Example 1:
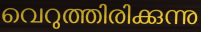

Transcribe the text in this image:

വെറുത്തിരിക്കുന്നു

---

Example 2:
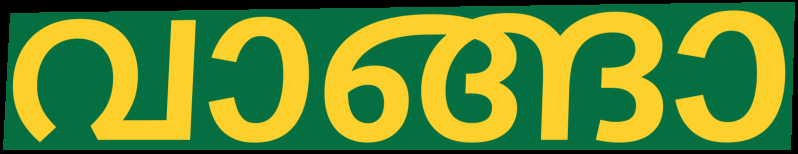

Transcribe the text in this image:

വാങ്ങാ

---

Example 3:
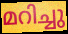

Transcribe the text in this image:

മറിച്ചു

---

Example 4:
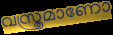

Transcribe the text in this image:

വസ്ത്രമാണോ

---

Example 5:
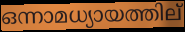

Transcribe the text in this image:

ഒന്നാമധ്യായത്തില്